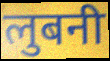
लुबनी